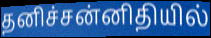
தனிச்சன்னிதியில்